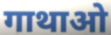
गाथाओ